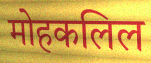
मोहकलिल